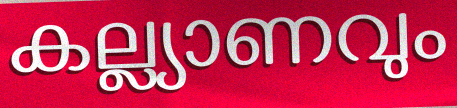
കല്ല്യാണവും